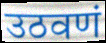
उठवणं